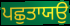
ਪਛੁਤਾਯਉ